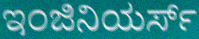
ಇಂಜಿನಿಯರ್ಸ್